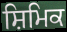
ਸ਼ਿਮਿਕ